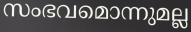
സംഭവമൊന്നുമല്ല